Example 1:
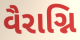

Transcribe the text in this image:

વૈરાગ્નિ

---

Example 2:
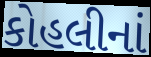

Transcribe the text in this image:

કોહલીનાં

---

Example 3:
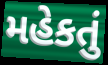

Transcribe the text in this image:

મહેકતું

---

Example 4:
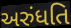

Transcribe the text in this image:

અરુંધતિ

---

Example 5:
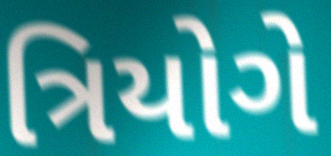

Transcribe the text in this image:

ત્રિયોગે